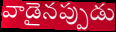
వాడైనప్పుడు